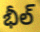
భీల్